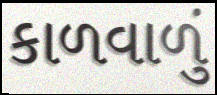
કાળવાળું